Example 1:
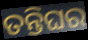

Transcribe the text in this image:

ତନ୍ତିଘର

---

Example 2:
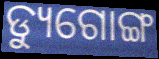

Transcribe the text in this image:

ଡ୍ୟୁଗୋଙ୍ଗ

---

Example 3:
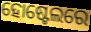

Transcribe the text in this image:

ହୋଷ୍ଟେଲରେ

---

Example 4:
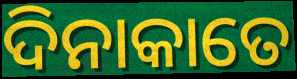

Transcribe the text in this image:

ଦିନାକାତେ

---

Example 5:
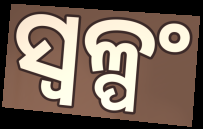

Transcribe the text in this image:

ସ୍ୱଳ୍ପଂ